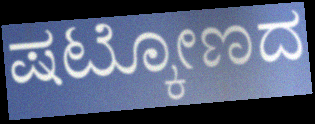
ಷಟ್ಕೋಣದ